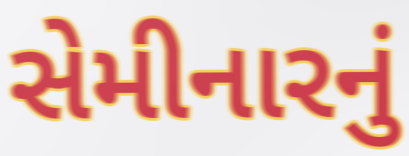
સેમીનારનું